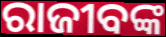
ରାଜୀବଙ୍କ